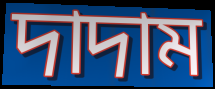
দাদাম